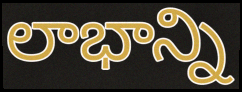
లాభాన్ని